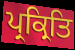
ਪ੍ਰਕ੍ਰਿਤਿ